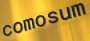
comosum